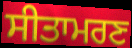
ਸੀਤਾਮਰਣ